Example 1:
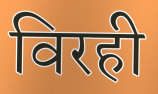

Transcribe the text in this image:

विरही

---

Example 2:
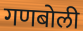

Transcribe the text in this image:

गणबोली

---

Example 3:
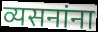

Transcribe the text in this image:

व्यसनांना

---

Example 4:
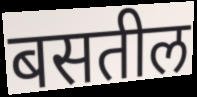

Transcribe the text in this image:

बसतील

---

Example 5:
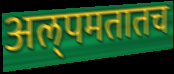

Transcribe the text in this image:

अल्पमतातच